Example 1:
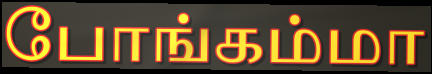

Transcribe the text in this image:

போங்கம்மா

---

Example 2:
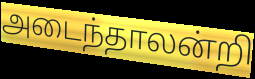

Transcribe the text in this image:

அடைந்தாலன்றி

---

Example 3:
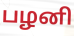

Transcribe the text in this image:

பழனி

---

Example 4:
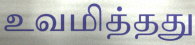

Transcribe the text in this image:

உவமித்தது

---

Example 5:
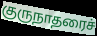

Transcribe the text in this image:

குருநாதரைச்